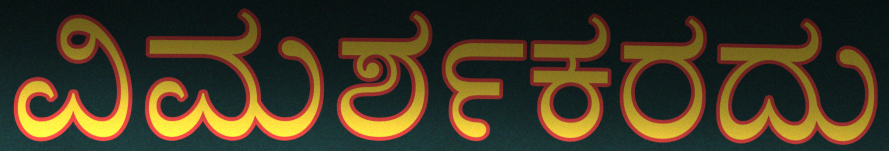
ವಿಮರ್ಶಕರದು